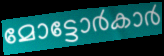
മോട്ടോർകാർ